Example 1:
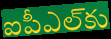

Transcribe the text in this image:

ఐపీఎల్‌కు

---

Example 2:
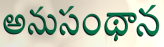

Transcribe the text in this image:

అనుసంథాన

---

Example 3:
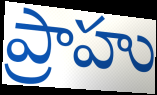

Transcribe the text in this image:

ప్రాహు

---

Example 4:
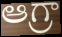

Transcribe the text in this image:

ఆగ్రా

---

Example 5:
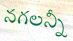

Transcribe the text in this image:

నగలన్నీ